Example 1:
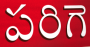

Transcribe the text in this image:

పరిగె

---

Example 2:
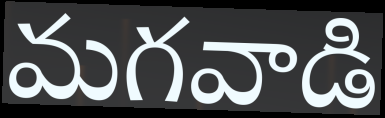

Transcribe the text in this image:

మగవాడి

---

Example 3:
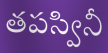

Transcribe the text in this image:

తపస్వినీ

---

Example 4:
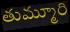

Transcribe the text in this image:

తుమ్మూరి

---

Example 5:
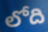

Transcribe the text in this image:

లోది